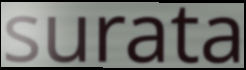
surata